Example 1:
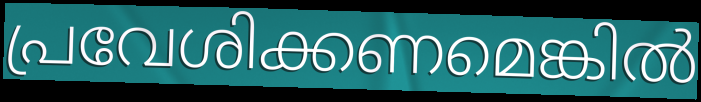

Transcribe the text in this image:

പ്രവേശിക്കണമെങ്കിൽ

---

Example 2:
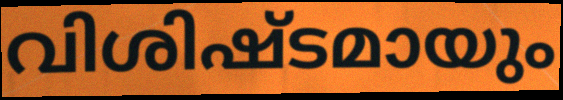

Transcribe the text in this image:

വിശിഷ്ടമായും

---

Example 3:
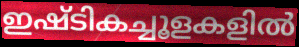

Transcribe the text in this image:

ഇഷ്ടികച്ചൂളകളിൽ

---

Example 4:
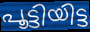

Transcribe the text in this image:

പൂട്ടിയിട്ട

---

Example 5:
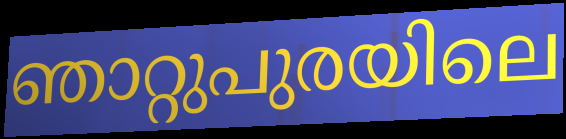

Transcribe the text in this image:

ഞാറ്റുപുരയിലെ